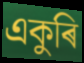
একুৰি